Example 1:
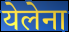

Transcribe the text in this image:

येलेना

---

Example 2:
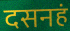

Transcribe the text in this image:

दसनहं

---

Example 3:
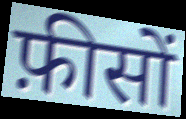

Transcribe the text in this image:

फ़ीसों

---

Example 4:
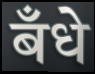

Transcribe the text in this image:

बँधे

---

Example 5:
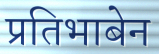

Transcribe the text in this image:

प्रतिभाबेन